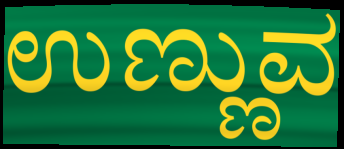
ಉಣ್ಣುವ